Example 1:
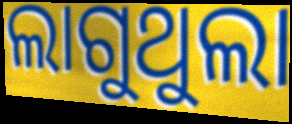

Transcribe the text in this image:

ଲାଗୁଥୁଲା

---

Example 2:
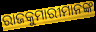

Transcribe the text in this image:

ରାଜକୁମାରୀମାନଙ୍କ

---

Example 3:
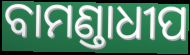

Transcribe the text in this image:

ବାମଣ୍ଡାଧୀପ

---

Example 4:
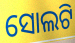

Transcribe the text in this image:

ସୋଲଟି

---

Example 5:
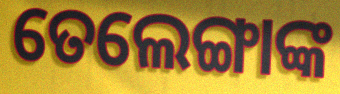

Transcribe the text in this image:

ତେଲେଙ୍ଗାଙ୍କ